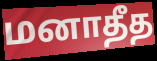
மனாதீத